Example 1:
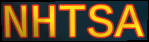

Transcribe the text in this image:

NHTSA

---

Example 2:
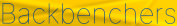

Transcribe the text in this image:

Backbenchers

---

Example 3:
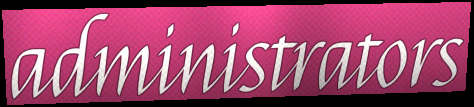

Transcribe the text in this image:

administrators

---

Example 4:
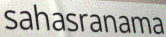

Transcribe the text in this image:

sahasranama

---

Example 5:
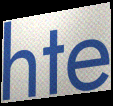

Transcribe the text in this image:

hte